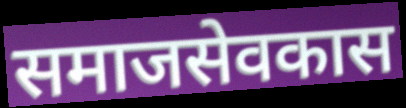
समाजसेवकास